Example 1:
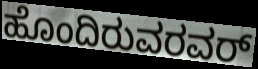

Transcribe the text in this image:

ಹೊಂದಿರುವರವರ್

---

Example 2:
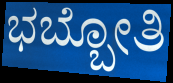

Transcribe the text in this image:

ಭಬ್ಬೋತಿ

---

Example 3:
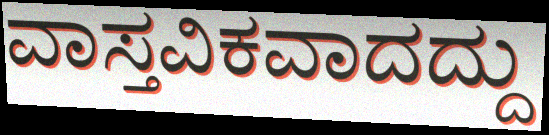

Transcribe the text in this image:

ವಾಸ್ತವಿಕವಾದದ್ದು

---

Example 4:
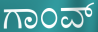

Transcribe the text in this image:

ಗಾಂವ್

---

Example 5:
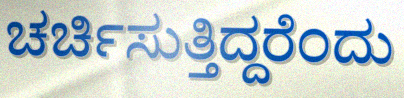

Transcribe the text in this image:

ಚರ್ಚಿಸುತ್ತಿದ್ದರೆಂದು